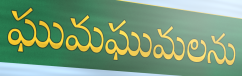
ఘుమఘుమలను